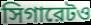
সিগারেটও